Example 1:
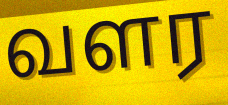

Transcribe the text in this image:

வளர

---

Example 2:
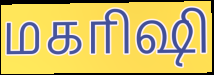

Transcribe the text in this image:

மகரிஷி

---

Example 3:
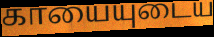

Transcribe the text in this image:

காயையுடைய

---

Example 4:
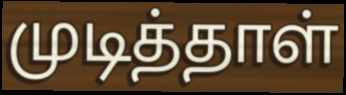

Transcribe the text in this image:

முடித்தாள்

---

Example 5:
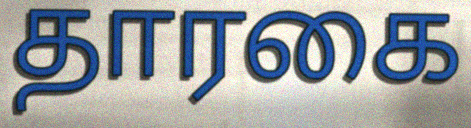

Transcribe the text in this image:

தாரகை